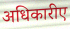
अधिकारीए